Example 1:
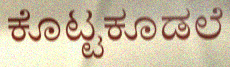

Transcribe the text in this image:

ಕೊಟ್ಟಕೂಡಲೆ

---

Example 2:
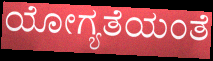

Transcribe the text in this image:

ಯೋಗ್ಯತೆಯಂತೆ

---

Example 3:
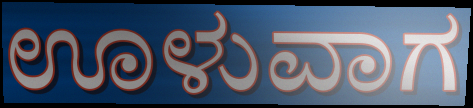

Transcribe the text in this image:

ಊಳುವಾಗ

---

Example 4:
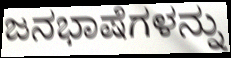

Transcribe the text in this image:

ಜನಭಾಷೆಗಳನ್ನು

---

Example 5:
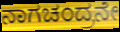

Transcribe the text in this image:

ನಾಗಚಂದ್ರನೇ